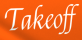
Takeoff